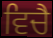
ਵਿਚੈ